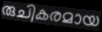
രുചികരമായ